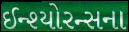
ઈન્શ્યોરન્સના